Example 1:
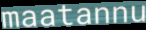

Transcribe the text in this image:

maatannu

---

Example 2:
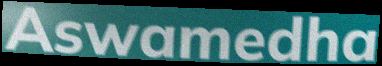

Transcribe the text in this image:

Aswamedha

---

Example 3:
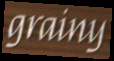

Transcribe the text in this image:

grainy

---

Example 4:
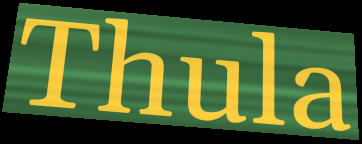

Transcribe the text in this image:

Thula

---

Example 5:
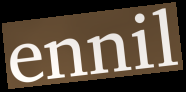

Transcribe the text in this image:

ennil